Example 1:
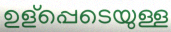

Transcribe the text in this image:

ഉള്പ്പെടെയുള്ള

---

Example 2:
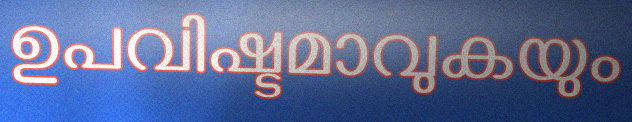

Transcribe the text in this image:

ഉപവിഷ്ടമാവുകയും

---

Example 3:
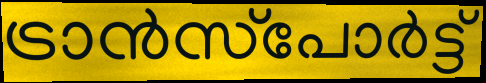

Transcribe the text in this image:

ട്രാൻസ്‌പോർട്ട്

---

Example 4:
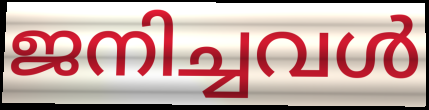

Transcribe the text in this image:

ജനിച്ചവൾ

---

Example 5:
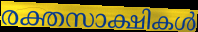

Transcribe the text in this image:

രക്തസാക്ഷികൾ